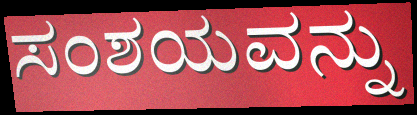
ಸಂಶಯವನ್ನು